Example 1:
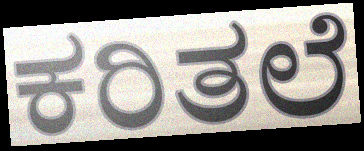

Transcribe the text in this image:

ಕರಿತಲೆ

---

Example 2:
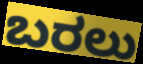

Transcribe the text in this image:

ಬರಲು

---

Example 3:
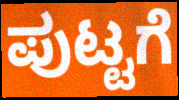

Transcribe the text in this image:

ಪುಟ್ಟಗೆ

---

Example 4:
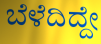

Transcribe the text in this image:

ಬೆಳೆದಿದ್ದೇ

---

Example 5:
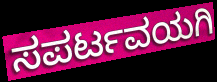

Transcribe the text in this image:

ಸಪರ್ಟವಯಗಿ